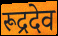
रूद्रदेव